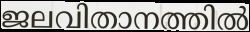
ജലവിതാനത്തിൽ